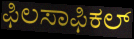
ಫಿಲಸಾಫಿಕಲ್